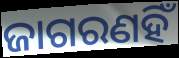
ଜାଗରଣହିଁ